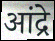
आंद्रे